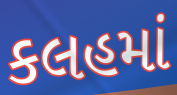
કલહમાં